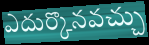
ఎదుర్కొనవచ్చు